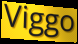
Viggo